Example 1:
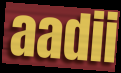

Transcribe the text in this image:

aadii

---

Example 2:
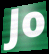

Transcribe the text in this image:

Jo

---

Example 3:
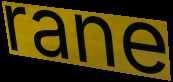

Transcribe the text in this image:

rane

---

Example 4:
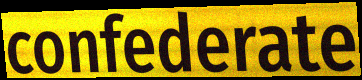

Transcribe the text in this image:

confederate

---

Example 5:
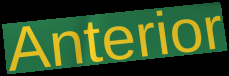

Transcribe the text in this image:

Anterior